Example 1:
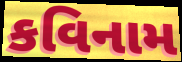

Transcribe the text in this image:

કવિનામ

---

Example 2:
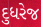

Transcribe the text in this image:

દુધરેજ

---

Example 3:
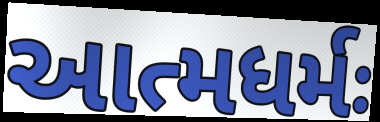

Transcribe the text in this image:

આત્મધર્મઃ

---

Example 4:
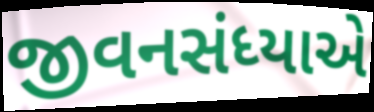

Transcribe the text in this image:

જીવનસંધ્યાએ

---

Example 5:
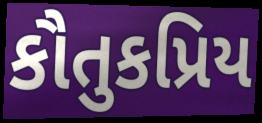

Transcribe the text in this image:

કૌતુકપ્રિય